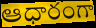
ఆధారంగా